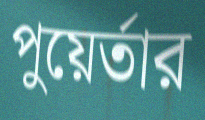
পুয়ের্তার